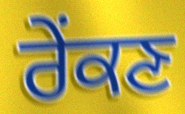
ਰੇੰਕਣ